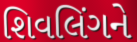
શિવલિંગને